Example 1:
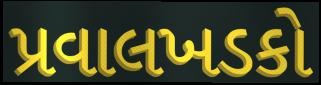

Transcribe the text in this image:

પ્રવાલખડકો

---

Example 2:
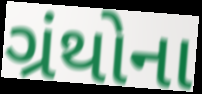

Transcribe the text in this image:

ગ્રંથોના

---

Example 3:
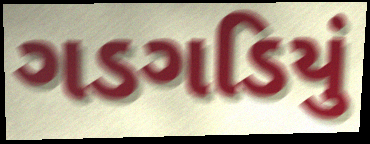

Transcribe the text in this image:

ગડગડિયું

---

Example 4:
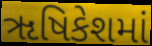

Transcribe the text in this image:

ૠષિકેશમાં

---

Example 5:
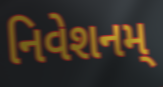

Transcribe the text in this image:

નિવેશનમ્